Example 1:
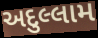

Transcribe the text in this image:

અદુલ્લામ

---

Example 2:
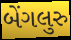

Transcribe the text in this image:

બેંગલુરુ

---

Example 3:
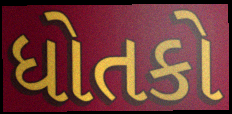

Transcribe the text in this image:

ધોતકો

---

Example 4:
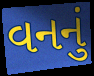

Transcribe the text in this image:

વનનું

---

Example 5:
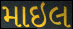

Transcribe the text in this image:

માઇલ